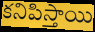
కనిపిస్తాయి